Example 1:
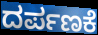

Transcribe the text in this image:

ದರ್ಪಣಕೆ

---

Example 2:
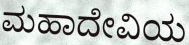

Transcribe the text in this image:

ಮಹಾದೇವಿಯ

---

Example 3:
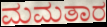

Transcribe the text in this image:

ಮಮತಾರ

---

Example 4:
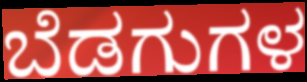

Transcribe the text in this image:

ಬೆಡಗುಗಳ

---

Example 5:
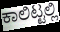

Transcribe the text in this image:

ಕಾಲಿಟ್ಟಲ್ಲಿ